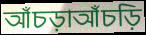
আঁচড়াআঁচড়ি